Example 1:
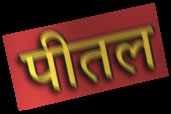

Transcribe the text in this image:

पीतल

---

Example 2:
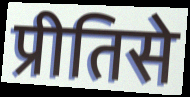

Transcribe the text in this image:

प्रीतिसे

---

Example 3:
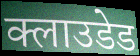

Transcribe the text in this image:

क्लाउडेड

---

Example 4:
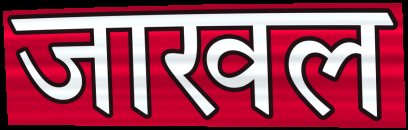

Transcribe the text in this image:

जाखल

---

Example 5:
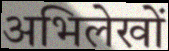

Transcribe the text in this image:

अभिलेखों